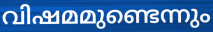
വിഷമമുണ്ടെന്നും